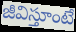
జీవిస్తూంటే